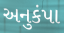
અનુકંપા